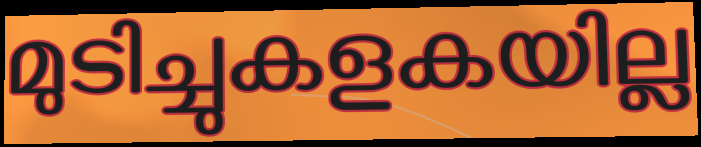
മുടിച്ചുകളകയില്ല